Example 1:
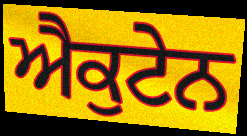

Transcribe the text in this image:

ਐਕੁਟੇਨ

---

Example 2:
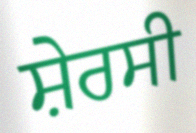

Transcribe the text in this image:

ਸ਼ੇਰਸੀ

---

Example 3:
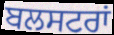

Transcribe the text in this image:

ਬਲਸਟਰਾਂ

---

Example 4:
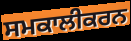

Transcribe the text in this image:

ਸਮਕਾਲੀਕਰਨ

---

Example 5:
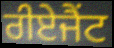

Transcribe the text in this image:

ਰੀਏਜੈਂਟ